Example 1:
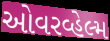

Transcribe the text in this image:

ઓવરવ્હેલ્મ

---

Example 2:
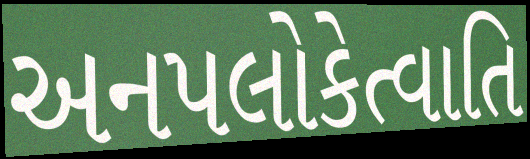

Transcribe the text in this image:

અનપલોકેત્વાતિ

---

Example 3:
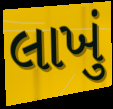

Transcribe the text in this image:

લાખું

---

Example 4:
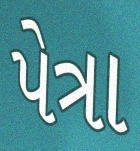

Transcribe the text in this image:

પેત્રા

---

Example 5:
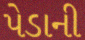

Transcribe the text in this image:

પેડાની